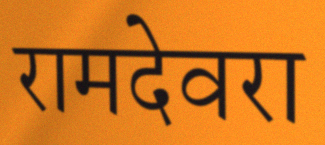
रामदेवरा